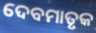
ଦେବମାତୃକ